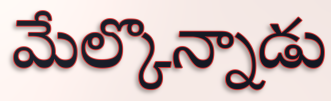
మేల్కొన్నాడు